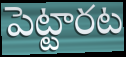
పెట్టారట